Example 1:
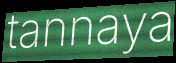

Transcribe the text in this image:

tannaya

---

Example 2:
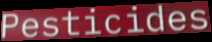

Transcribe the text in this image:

Pesticides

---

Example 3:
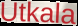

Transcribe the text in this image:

Utkala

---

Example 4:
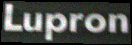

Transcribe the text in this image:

Lupron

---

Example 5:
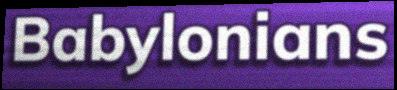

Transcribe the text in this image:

Babylonians